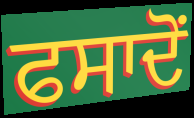
ਫਸਾਦੋਂ